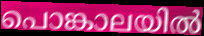
പൊങ്കാലയിൽ